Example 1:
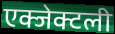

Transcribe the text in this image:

एक्जेक्टली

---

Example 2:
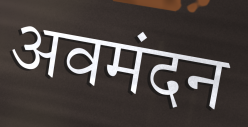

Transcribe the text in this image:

अवमंदन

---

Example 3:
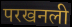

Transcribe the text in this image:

परखनली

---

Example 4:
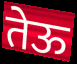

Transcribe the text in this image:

तेऊ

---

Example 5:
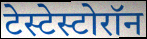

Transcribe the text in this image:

टेस्टेस्टोरॉन